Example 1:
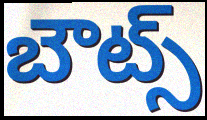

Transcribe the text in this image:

బౌట్స్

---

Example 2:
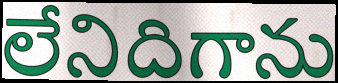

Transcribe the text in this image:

లేనిదిగాను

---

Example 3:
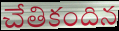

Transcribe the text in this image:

చేతికందిన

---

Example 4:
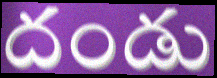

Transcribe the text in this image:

దండు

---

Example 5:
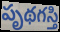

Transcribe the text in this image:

పృథగస్తి